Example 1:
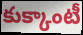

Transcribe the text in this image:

కుక్కాంటీ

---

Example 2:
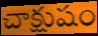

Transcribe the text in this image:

చాక్షుషం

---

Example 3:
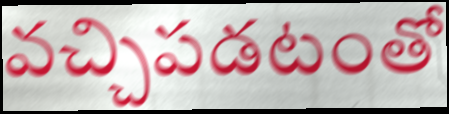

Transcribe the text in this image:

వచ్చిపడటంతో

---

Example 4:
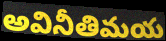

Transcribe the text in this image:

అవినీతిమయ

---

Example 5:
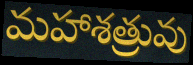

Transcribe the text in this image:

మహాశత్రువు